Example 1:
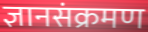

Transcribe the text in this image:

ज्ञानसंक्रमण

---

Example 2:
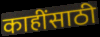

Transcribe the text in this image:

काहींसाठी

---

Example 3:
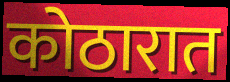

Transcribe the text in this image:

कोठारात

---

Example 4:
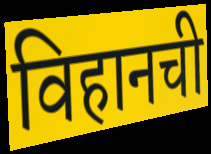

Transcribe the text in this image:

विहानची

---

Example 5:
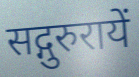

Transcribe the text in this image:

सद्गुरुरायें